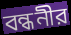
বন্ধনীর